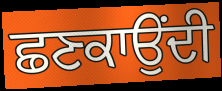
ਛਣਕਾਉਂਦੀ